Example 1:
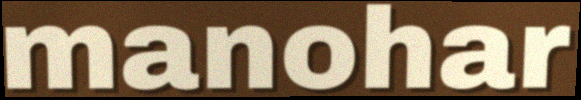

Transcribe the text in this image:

manohar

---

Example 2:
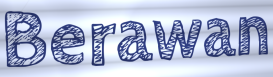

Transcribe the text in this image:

Berawan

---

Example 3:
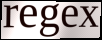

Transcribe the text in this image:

regex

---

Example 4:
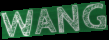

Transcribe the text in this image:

WANG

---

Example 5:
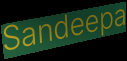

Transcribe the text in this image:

Sandeepa